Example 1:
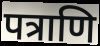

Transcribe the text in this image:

पत्राणि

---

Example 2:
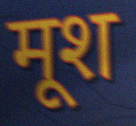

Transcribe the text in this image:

मूश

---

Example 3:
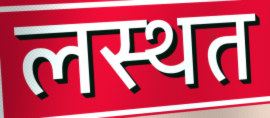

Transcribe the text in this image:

लस्थत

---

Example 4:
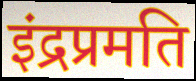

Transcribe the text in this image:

इंद्रप्रमति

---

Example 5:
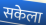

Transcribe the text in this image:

सकेला